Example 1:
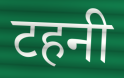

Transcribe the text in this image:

टहनी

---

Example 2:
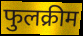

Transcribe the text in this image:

फुलक्रीम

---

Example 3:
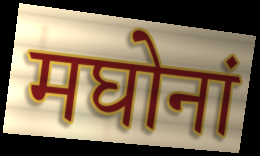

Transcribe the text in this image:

मघोनां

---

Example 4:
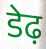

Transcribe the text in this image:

डेढ़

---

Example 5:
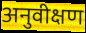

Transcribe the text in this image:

अनुवीक्षण